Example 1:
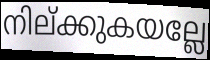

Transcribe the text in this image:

നില്ക്കുകയല്ലേ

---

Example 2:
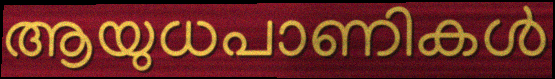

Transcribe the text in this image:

ആയുധപാണികൾ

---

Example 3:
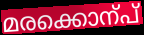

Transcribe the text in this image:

മരക്കൊന്പ്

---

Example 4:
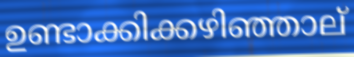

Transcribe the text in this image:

ഉണ്ടാക്കിക്കഴിഞ്ഞാല്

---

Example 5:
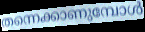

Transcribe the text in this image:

തന്നെക്കാണുമ്പോൾ